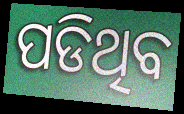
ପଡିଥିବ